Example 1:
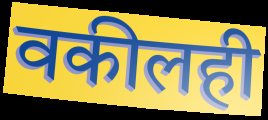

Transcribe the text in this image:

वकीलही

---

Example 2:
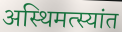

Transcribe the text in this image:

अस्थिमत्स्यांत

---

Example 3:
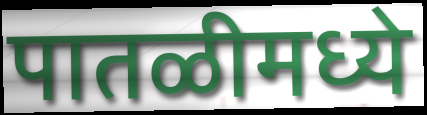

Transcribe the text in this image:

पातळीमध्ये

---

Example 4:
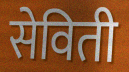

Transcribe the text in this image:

सेविती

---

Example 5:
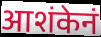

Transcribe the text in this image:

आशंकेनं